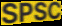
SPSC